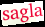
sagla